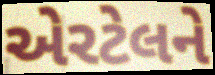
એરટેલને